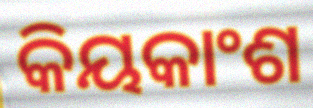
କିୟକାଂଶ